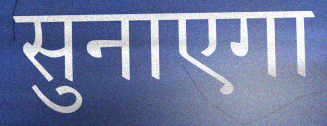
सुनाएगा